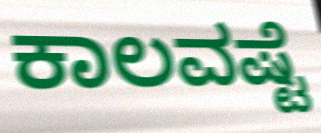
ಕಾಲವಷ್ಟೆ